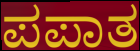
ಪಪಾತ